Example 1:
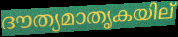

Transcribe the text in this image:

ദൗത്യമാതൃകയില്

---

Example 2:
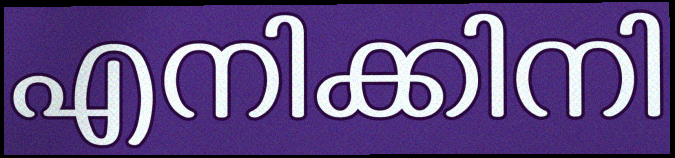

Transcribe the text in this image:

എനിക്കിനി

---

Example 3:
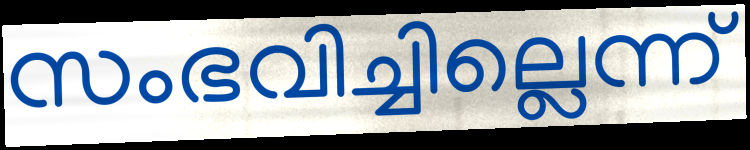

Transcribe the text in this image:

സംഭവിച്ചില്ലെന്ന്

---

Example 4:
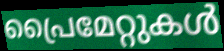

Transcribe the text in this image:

പ്രൈമേറ്റുകൾ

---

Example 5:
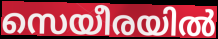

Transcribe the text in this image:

സെയീരയിൽ